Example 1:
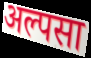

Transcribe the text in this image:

अल्पसा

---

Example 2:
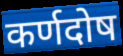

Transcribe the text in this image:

कर्णदोष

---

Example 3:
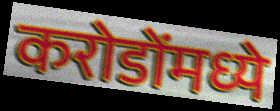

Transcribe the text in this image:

करोडोंमध्ये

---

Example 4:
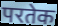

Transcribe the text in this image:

परतेक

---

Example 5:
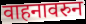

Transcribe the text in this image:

वाहनावरुन